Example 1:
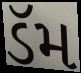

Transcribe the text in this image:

ડૅમ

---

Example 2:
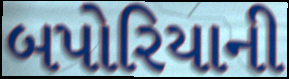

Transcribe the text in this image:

બપોરિયાની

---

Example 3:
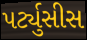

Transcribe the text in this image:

પર્ટ્યુસીસ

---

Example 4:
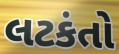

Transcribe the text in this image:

લટકંતો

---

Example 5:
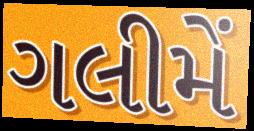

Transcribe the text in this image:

ગલીમેં